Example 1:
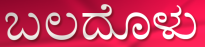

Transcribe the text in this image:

ಬಲದೊಳು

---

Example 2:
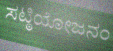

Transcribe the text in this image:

ಸಟ್ಠಿಯೋಜನಂ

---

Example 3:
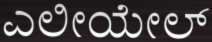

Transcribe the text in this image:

ಎಲೀಯೇಲ್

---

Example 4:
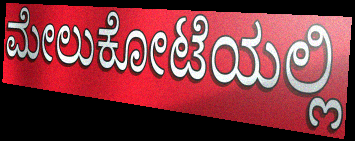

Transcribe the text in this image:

ಮೇಲುಕೋಟೆಯಲ್ಲಿ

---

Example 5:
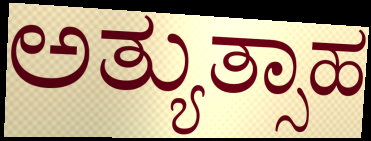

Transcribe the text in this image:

ಅತ್ಯುತ್ಸಾಹ